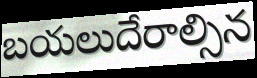
బయలుదేరాల్సిన